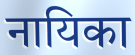
नायिका